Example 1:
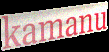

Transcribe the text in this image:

kamanu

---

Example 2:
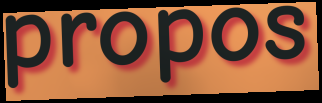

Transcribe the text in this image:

propos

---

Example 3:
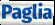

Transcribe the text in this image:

Paglia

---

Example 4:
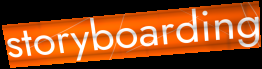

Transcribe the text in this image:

storyboarding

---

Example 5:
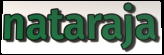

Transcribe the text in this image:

nataraja